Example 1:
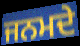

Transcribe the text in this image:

ਜਨਮਦੇ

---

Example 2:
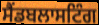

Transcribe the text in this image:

ਸੈਂਡਬਲਾਸਟਿੰਗ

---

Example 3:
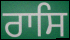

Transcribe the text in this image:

ਰਾਸਿ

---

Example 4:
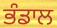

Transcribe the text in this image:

ਭੰਡਾਲ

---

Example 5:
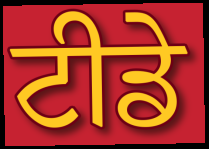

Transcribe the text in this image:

ਟੀਡੇ